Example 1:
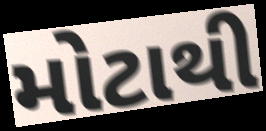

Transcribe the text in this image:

મોટાથી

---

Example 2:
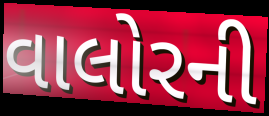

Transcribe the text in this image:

વાલોરની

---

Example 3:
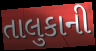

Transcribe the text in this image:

તાલુકાની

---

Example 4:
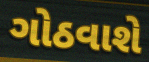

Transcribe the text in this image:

ગોઠવાશે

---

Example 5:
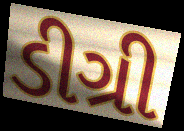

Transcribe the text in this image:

ડીગ્રી